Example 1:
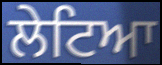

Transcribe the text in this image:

ਲੇਟਿਆ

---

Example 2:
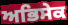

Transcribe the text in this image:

ਅਭਿਸੇਕ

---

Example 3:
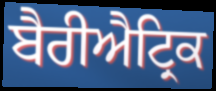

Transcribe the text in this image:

ਬੈਰੀਐਟ੍ਰਿਕ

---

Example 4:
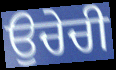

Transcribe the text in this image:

ਉਚੇਚੀ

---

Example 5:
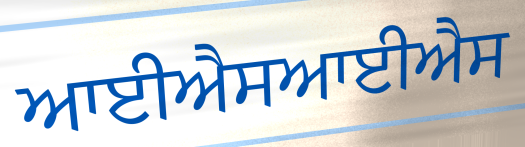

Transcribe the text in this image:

ਆਈਐਸਆਈਐਸ